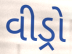
વીડ્રો